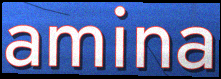
amina